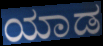
ಯಾಡ